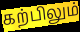
கற்பிலும்